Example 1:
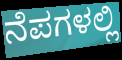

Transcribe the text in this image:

ನೆಪಗಳಲ್ಲಿ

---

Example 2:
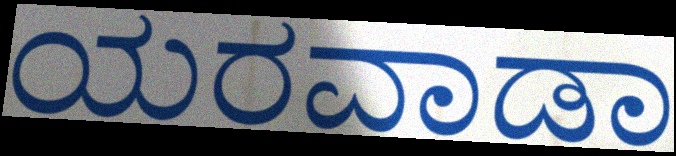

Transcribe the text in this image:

ಯರವಾಡಾ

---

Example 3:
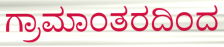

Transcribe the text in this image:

ಗ್ರಾಮಾಂತರದಿಂದ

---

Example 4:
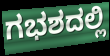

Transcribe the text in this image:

ಗಭಶದಲ್ಲಿ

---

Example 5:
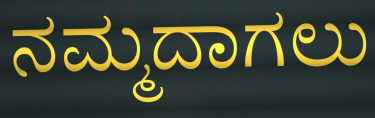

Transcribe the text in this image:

ನಮ್ಮದಾಗಲು